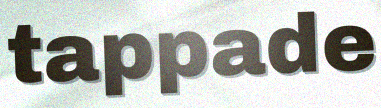
tappade